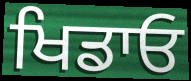
ਖਿਡਾਓ